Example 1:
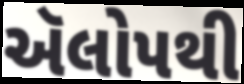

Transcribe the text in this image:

ઍલોપથી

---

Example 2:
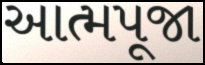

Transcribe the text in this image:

આત્મપૂજા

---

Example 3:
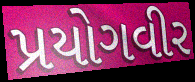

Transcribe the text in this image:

પ્રયોગવીર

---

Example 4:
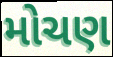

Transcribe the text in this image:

મોચણ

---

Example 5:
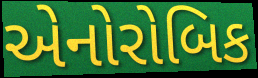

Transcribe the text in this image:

એનોરોબિક